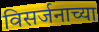
विसर्जनाच्या